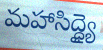
మహాసిద్ధ్యై